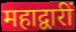
महाद्वारीं